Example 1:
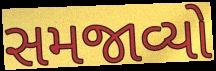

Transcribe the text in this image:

સમજાવ્યો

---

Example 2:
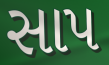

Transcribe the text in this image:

સાપ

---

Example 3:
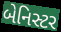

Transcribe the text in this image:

બેનિસ્ટર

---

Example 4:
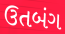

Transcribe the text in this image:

ઉતબંગ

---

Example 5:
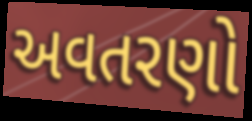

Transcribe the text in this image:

અવતરણો